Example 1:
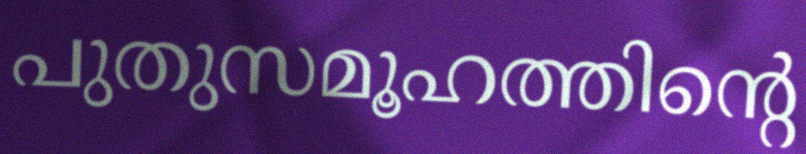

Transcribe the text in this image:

പുതുസമൂഹത്തിന്റെ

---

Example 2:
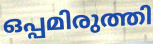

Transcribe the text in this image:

ഒപ്പമിരുത്തി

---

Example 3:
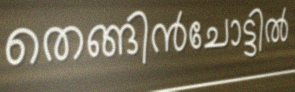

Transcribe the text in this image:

തെങ്ങിൻചോട്ടിൽ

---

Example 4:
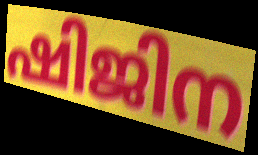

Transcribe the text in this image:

ഷിജിന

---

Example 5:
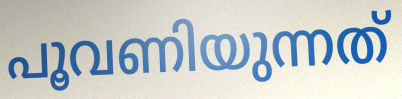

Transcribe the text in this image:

പൂവണിയുന്നത്